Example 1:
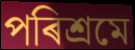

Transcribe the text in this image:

পৰিশ্ৰমে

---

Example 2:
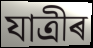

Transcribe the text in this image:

যাত্ৰীৰ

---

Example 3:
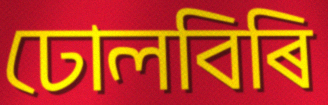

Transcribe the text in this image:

ঢোলবিৰি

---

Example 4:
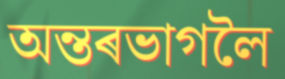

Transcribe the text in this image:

অন্তৰভাগলৈ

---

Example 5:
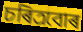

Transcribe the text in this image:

চৰিত্ৰবোৰ